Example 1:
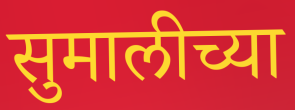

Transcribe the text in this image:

सुमालीच्या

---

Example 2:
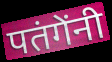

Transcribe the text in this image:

पतंगेंनी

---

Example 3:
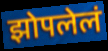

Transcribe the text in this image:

झोपलेलं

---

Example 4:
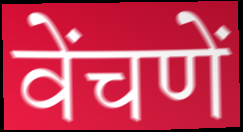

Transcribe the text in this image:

वेंचणें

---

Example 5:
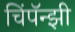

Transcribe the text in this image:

चिंपॅन्झी